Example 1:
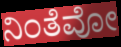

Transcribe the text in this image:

ನಿಂತೆವೋ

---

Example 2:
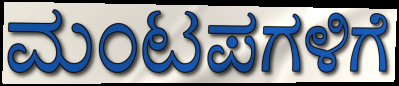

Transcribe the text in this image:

ಮಂಟಪಗಳಿಗೆ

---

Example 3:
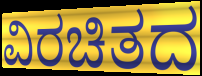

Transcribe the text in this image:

ವಿರಚಿತದ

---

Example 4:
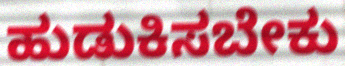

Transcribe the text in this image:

ಹುಡುಕಿಸಬೇಕು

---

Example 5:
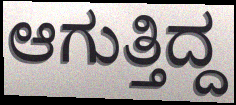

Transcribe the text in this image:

ಆಗುತ್ತಿದ್ದ